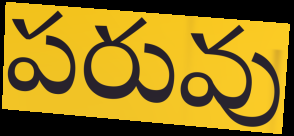
పరువు